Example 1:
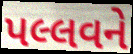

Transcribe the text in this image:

પલ્લવને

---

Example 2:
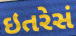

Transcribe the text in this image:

ઇતરેસં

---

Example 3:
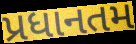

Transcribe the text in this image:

પ્રધાનતમ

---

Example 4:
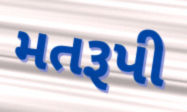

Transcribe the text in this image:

મતરૂપી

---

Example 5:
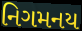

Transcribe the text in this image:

નિગમનય